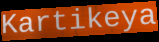
Kartikeya